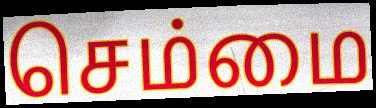
செம்மை